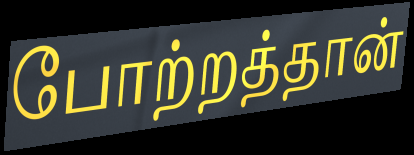
போற்றத்தான்